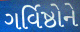
ગર્વિષ્ઠોને